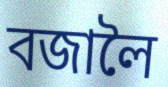
বজালৈ